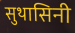
सुथासिनी